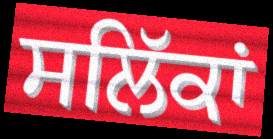
ਸਲਿੱਕਾਂ